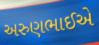
અરુણભાઈએ